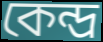
কেন্দ্র